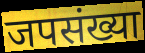
जपसंख्या